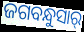
ଜଗବନ୍ଧୁସାର୍